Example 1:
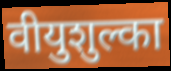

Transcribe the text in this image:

वीयुशुल्का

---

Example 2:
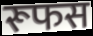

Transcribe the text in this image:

रूफस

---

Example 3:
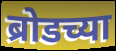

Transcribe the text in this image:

ब्रोडच्या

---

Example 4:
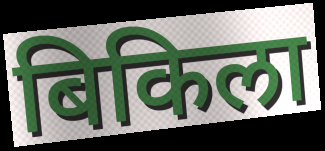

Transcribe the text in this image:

बिकिला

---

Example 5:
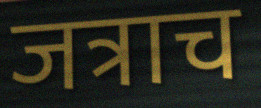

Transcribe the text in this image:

जत्राच